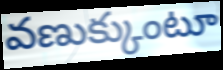
వణుక్కుంటూ